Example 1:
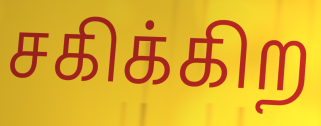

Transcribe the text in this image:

சகிக்கிற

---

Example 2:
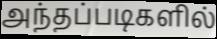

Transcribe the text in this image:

அந்தப்படிகளில்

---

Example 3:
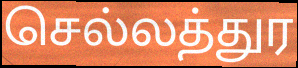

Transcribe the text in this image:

செல்லத்துர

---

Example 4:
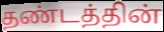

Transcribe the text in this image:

தண்டத்தின்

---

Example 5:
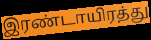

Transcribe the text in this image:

இரண்டாயிரத்து